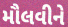
મૌલવીને